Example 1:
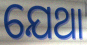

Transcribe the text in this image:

ଯେଥା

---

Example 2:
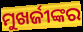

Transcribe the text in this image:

ମୁଖର୍ଜୀଙ୍କର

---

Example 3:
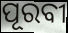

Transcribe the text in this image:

ପୂରବୀ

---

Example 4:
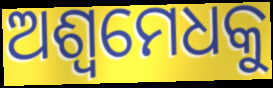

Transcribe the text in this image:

ଅଶ୍ୱମେଧକୁ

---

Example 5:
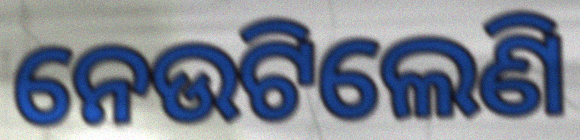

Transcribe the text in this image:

ନେଉଟିଲେଣି